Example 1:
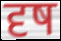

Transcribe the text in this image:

दृष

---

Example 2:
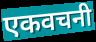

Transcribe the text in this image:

एकवचनी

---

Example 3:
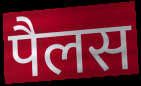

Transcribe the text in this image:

पैलस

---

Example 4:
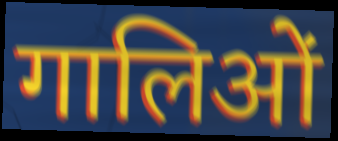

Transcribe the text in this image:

गालिओं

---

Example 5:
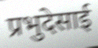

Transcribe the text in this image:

प्रभुदेसाई